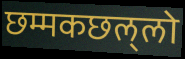
छम्मकछल्लो